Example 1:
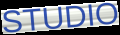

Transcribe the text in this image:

STUDIO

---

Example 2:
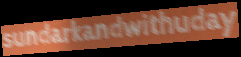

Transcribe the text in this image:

sundarkandwithuday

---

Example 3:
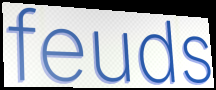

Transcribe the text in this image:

feuds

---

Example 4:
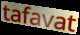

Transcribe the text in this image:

tafavat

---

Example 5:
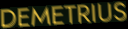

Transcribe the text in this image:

DEMETRIUS